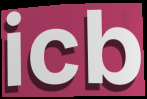
icb